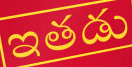
ఇతడు